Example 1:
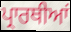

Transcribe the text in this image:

ਪ੍ਰਾਰਥੀਆਂ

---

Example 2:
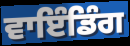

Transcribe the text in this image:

ਵਾਇੰਡਿੰਗ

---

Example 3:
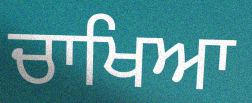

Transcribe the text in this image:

ਚਾਖਿਆ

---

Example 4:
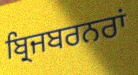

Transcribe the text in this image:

ਬ੍ਰਿਜਬਰਨਰਾਂ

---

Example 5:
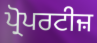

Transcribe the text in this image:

ਪ੍ਰੋਪਰਟੀਜ਼